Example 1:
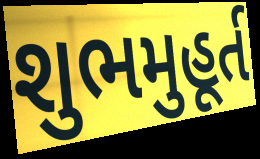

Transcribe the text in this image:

શુભમુહૂર્ત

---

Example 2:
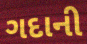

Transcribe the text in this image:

ગદાની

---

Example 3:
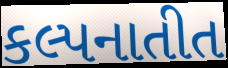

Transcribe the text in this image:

કલ્પનાતીત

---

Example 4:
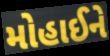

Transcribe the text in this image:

મોહાઈને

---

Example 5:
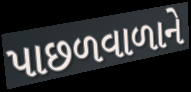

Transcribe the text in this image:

પાછળવાળાને